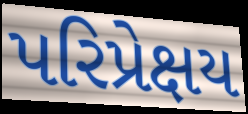
પરિપ્રેક્ષય